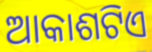
ଆକାଶଟିଏ